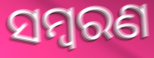
ସମ୍ୱରଣ